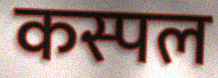
कस्पल